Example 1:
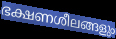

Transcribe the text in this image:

ഭക്ഷണശീലങ്ങളും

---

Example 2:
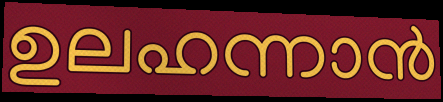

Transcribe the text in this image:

ഉലഹന്നാൻ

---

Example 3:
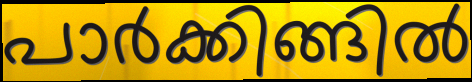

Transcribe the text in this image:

പാർക്കിങ്ങിൽ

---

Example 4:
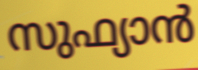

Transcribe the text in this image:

സുഫ്യാൻ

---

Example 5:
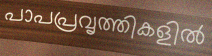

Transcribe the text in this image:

പാപപ്രവൃത്തികളിൽ